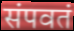
संपवतं